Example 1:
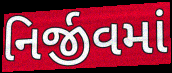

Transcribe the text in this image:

નિર્જીવમાં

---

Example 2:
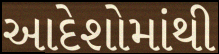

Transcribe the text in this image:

આદેશોમાંથી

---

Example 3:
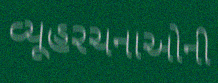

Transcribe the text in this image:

વ્યૂહરચનાઓની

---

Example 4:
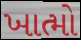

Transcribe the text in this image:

ખાત્મો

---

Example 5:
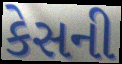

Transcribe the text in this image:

કેસની